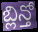
బ్లిన్తో